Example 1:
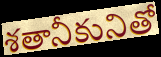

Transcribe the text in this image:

శతానీకునితో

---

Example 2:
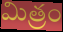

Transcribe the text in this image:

మిత్రం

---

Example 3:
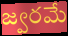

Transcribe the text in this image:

జ్వరమే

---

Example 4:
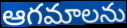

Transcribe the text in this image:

ఆగమాలను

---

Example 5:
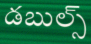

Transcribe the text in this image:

డబుల్స్